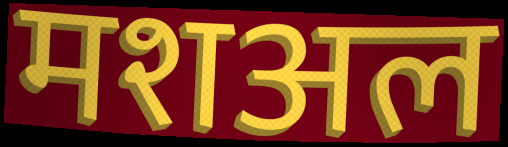
मशअल